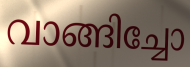
വാങ്ങിച്ചോ